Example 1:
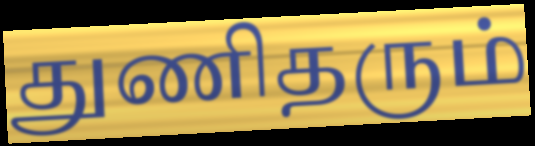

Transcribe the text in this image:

துணிதரும்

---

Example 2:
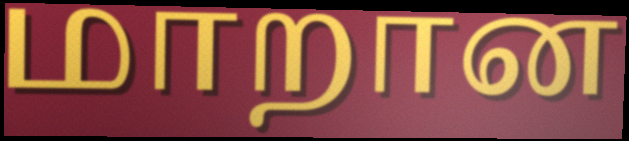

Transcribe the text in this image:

மாறான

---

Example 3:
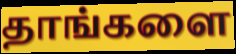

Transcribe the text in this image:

தாங்களை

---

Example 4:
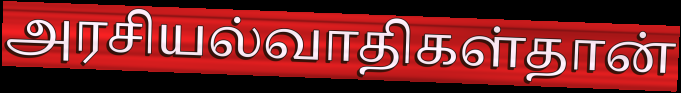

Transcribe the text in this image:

அரசியல்வாதிகள்தான்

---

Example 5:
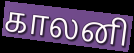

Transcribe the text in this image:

காலனி